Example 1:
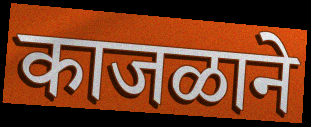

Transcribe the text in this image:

काजळाने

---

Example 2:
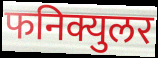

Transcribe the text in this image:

फनिक्युलर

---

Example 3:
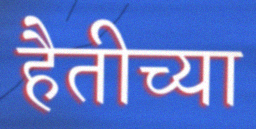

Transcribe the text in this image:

हैतीच्या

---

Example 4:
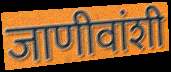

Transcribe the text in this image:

जाणीवांशी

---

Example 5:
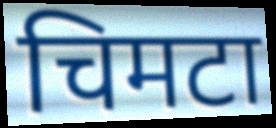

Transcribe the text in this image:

चिमटा